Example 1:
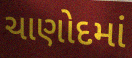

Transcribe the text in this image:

ચાણોદમાં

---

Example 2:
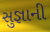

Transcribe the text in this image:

સુજ્ઞાની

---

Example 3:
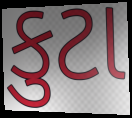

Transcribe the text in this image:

કુટા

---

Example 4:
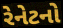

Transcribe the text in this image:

રેનેટનો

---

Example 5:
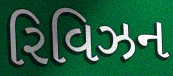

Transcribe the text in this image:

રિવિઝન